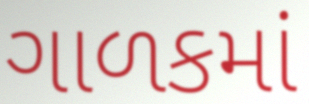
ગાળકમાં